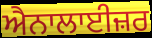
ਐਨਾਲਾਈਜ਼ਰ